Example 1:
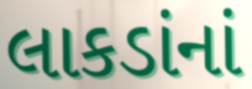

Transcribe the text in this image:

લાકડાંનાં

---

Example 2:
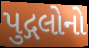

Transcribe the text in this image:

પુદ્ગલોનો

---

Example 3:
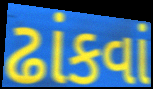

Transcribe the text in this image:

ઢાંકવાં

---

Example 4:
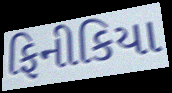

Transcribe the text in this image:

ફિનીકિયા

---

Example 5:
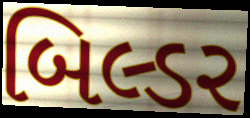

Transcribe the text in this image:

બિલ્ડર